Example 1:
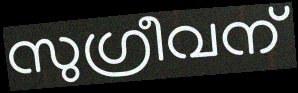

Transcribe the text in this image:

സുഗ്രീവന്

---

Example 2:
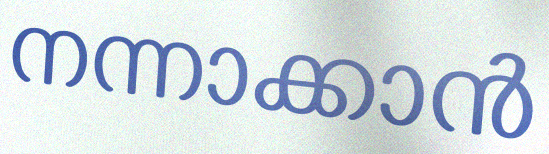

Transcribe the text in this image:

നന്നാക്കാൻ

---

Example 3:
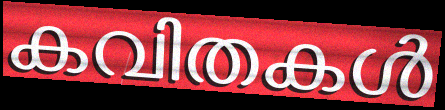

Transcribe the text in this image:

കവിതകൾ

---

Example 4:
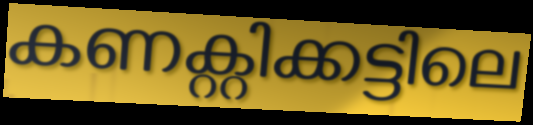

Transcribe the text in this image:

കണക്റ്റിക്കട്ടിലെ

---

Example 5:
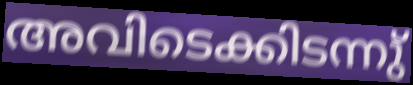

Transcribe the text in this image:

അവിടെക്കിടന്നു്